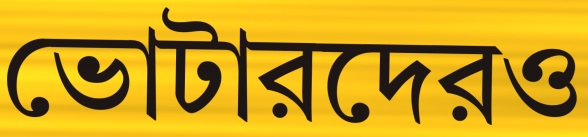
ভোটারদেরও